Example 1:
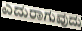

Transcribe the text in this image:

ಎದುರಾಗುವುದು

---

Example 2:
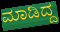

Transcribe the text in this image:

ಮಾಡಿದ್ದ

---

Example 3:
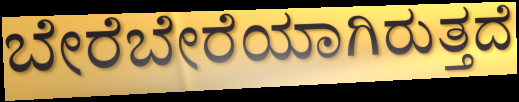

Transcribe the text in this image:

ಬೇರೆಬೇರೆಯಾಗಿರುತ್ತದೆ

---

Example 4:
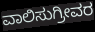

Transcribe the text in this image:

ವಾಲಿಸುಗ್ರೀವರ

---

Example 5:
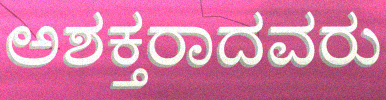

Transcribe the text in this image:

ಅಶಕ್ತರಾದವರು